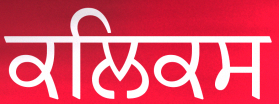
ਕਲਿਕਸ